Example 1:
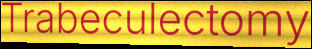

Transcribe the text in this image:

Trabeculectomy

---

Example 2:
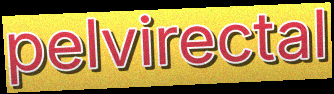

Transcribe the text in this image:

pelvirectal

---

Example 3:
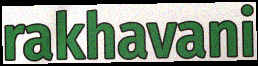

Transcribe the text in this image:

rakhavani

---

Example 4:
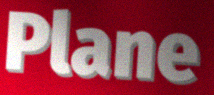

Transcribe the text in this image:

Plane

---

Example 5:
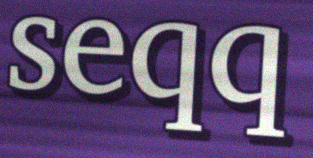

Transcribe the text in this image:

seqq